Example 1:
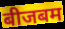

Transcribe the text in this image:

बीजबम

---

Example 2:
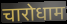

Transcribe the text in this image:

चारोधाम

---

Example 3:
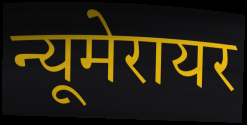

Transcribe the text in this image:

न्यूमेरायर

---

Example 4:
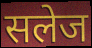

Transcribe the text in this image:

सलेज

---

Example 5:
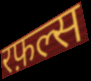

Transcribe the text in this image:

रफ़ल्स